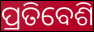
ପ୍ରତିବେଶି